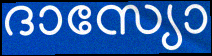
ദാസ്യോ